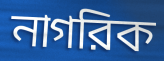
নাগরিক